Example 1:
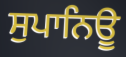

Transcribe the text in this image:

ਸੁਪਾਨਿਊ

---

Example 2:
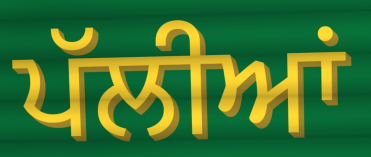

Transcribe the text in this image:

ਪੱਲੀਆਂ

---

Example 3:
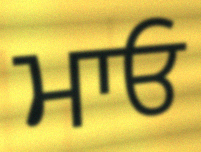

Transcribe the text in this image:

ਮਾਓ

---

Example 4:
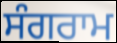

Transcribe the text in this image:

ਸੰਗਰਾਮ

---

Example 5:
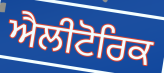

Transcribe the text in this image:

ਐਲੀਟੋਰਿਕ